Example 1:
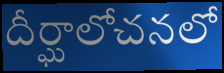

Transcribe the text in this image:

దీర్ఘాలోచనలో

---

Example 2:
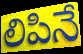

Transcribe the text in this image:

లిపినే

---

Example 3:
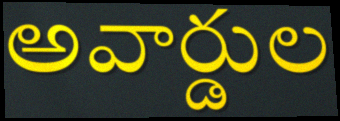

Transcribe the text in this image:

అవార్డుల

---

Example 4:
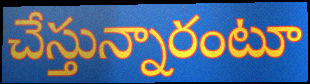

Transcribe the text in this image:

చేస్తున్నారంటూ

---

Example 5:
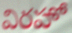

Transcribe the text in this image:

విరహో